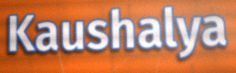
Kaushalya